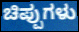
ಚಿಪ್ಪುಗಳು